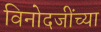
विनोदजींच्या